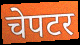
चेपटर